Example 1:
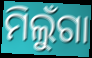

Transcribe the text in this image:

ମିଲୁଁଗା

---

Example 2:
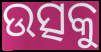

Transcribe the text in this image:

ଉତ୍ସକୁ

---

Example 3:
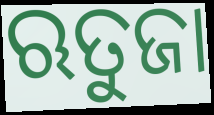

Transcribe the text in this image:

ଋତୁଜା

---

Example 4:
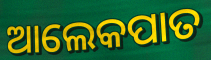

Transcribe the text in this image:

ଆଲେକପାତ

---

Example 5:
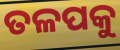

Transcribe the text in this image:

ତଳପକୁ